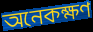
অনেকক্ষণ